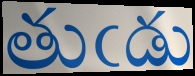
తుఁడు